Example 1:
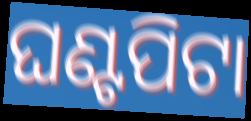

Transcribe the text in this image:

ଘଣ୍ଟପିଟା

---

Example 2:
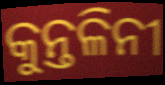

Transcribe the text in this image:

କୁନ୍ତଳିନୀ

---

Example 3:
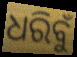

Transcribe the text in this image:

ଧରିବୁଁ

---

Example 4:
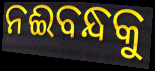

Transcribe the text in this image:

ନଈବନ୍ଧକୁ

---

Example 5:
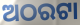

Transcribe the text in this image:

ଅଠରଟା